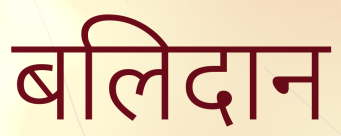
बलिदान